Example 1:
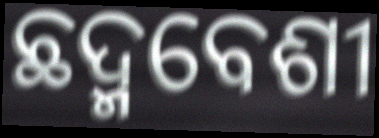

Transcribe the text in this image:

ଛଦ୍ମବେଶୀ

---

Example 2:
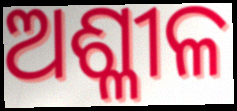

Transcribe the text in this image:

ଅଶ୍ଳୀଳ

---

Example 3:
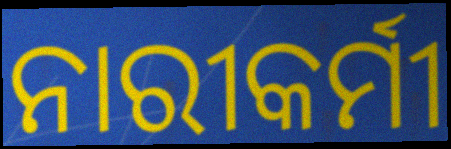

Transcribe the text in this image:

ନାରୀକର୍ମୀ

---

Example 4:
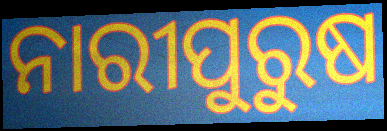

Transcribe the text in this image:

ନାରୀପୁରୁଷ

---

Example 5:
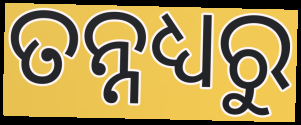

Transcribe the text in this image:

ତନ୍ନଧ୍ୟରୁ